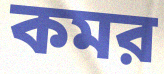
কমর